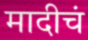
मादीचं